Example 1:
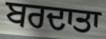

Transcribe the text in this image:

ਬਰਦਾਤਾ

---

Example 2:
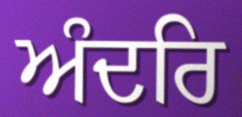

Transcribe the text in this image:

ਅੰਦਰਿ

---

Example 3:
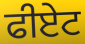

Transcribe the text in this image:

ਫੀਏਟ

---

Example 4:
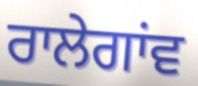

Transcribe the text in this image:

ਰਾਲੇਗਾਂਵ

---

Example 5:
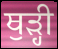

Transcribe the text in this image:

ਥੁੜ੍ਹੀ